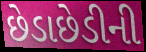
છેડાછેડીની